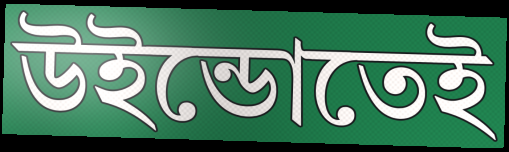
উইন্ডোতেই